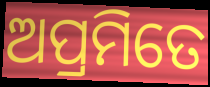
ଅପ୍ରମିତେ